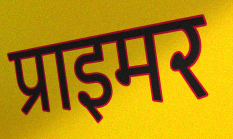
प्राइमर